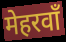
मेहरवाँ